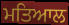
ਮਤਿਆਲ